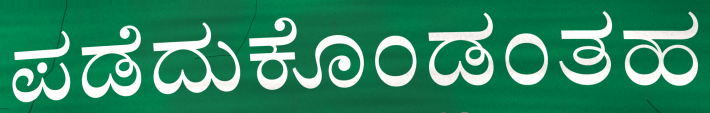
ಪಡೆದುಕೊಂಡಂತಹ